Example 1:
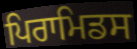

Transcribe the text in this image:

ਪਿਰਾਮਿਡਸ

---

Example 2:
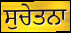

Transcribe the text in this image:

ਸੁਚੇਤਨਾ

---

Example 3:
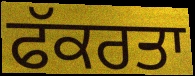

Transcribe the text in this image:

ਫੱਕਰਤਾ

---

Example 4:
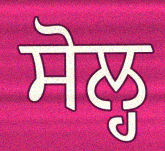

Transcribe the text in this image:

ਸੋਲ੍ਹ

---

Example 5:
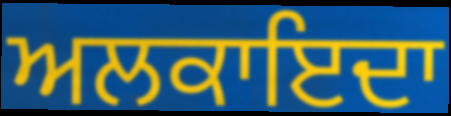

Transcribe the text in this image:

ਅਲਕਾਇਦਾ